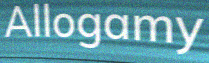
Allogamy